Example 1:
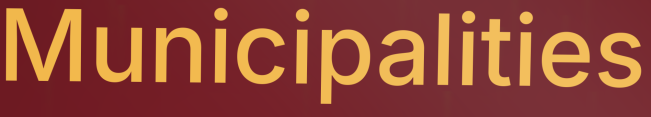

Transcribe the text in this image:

Municipalities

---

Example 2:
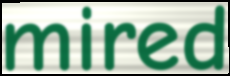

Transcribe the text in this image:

mired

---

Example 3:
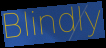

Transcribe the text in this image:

Blindly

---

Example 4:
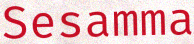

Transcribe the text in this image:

Sesamma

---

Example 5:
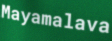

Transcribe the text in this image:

Mayamalava